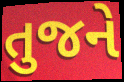
તુજને